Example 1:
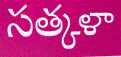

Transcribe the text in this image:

సత్కళా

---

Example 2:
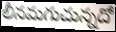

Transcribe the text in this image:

లీనమగుచున్నదో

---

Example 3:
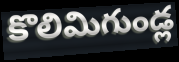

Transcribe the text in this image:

కొలిమిగుండ్ల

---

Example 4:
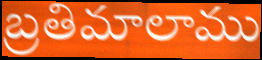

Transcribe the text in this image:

బ్రతిమాలాము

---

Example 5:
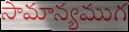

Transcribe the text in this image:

సామాన్యముగ